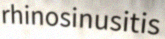
rhinosinusitis